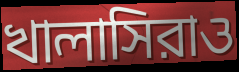
খালাসিরাও